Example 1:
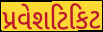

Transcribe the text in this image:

પ્રવેશટિકિટ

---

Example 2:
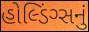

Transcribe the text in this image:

હોલ્ડિંગ્સનું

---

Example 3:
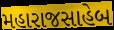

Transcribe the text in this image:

મહારાજસાહેબ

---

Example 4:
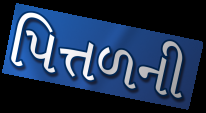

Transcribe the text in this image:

પિત્તળની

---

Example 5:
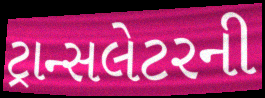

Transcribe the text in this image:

ટ્રાન્સલેટરની